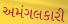
અમંગલકારી